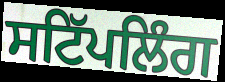
ਸਟਿੱਪਲਿੰਗ